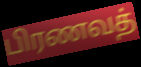
பிரணவத்